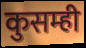
कुसम्ही